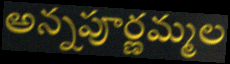
అన్నపూర్ణమ్మల